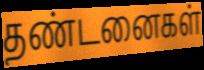
தண்டனைகள்